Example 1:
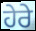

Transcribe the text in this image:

ਹੇਰੇ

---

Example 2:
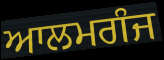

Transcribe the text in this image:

ਆਲਮਗੰਜ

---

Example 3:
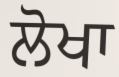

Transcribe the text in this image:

ਲੋਖਾ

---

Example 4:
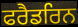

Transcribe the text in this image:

ਫਰੈਡਰਿਨ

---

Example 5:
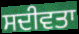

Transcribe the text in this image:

ਸਦੀਵਤਾ